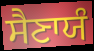
ਸੈਣਾਯੰ